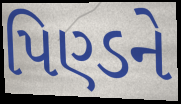
પિણ્ડને